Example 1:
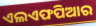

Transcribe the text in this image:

ଏଲଏଫପିଆର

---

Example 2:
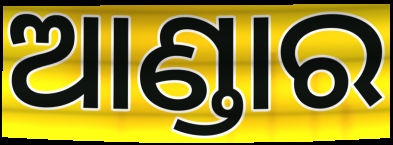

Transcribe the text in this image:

ଆଣ୍ଡାର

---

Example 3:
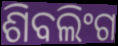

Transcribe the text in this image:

ଶିବଲିଂଗ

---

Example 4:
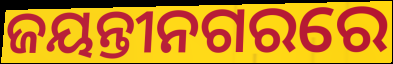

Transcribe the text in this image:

ଜୟନ୍ତୀନଗରରେ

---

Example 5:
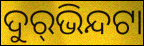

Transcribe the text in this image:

ଦୁର୍‌ଭିନ୍ଦଟା